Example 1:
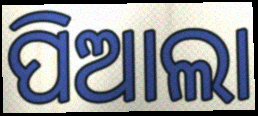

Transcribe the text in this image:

ପିଆଲା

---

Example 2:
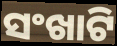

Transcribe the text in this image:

ସଂଖାଟି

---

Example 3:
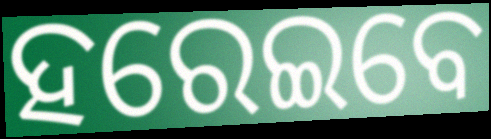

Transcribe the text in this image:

ହରେଇବେ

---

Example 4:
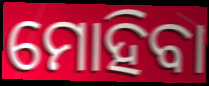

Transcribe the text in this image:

ମୋହିବା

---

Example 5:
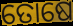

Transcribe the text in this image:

ତୋଷେ